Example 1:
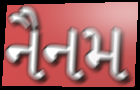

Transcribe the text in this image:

નૈનમ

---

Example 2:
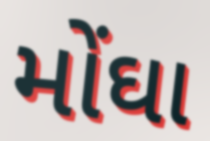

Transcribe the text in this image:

મોંઘા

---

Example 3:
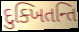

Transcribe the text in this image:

દુક્ખિતન્તિ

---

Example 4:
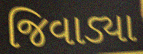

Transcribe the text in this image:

જિવાડ્યા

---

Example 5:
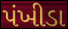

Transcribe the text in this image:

પંખીડા